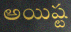
అయిష్ట